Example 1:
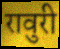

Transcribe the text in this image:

रावुरी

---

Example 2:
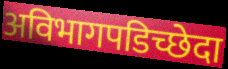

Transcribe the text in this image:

अविभागपडिच्छेदा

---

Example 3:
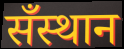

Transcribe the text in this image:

सँस्थान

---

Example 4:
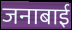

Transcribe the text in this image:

जनाबाई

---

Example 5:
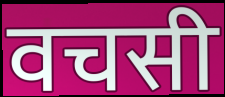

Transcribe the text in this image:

वचसी